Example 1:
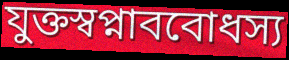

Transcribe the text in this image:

যুক্তস্বপ্নাববোধস্য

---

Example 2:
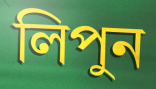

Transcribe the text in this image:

লিপুন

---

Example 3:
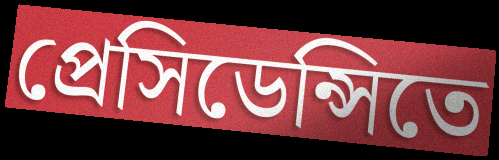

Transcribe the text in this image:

প্রেসিডেন্সিতে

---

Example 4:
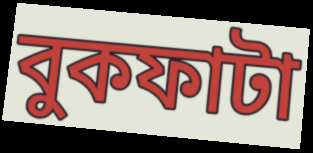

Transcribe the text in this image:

বুকফাটা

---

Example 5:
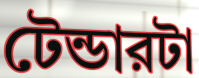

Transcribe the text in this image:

টেন্ডারটা